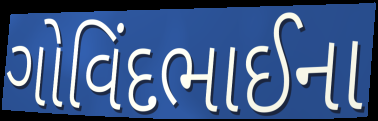
ગોવિંદભાઈના